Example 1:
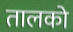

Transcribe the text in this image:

तालको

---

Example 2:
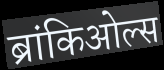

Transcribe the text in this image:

ब्रांकिओल्स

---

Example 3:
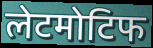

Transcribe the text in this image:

लेटमोटिफ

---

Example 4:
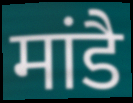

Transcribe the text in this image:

मांडै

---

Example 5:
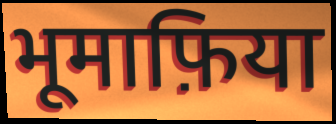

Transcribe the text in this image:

भूमाफ़िया